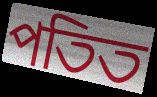
পতিত